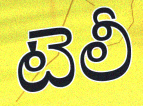
టెలీ